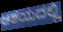
ಆಶಯದಲ್ಲಿ